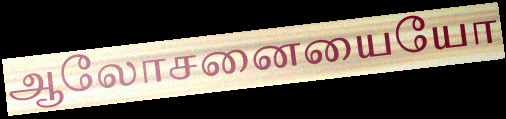
ஆலோசனையையோ